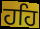
ਹਹਿ